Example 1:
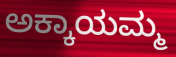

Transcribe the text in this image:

ಅಕ್ಕಾಯಮ್ಮ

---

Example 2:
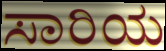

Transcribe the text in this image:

ಸಾರಿಯ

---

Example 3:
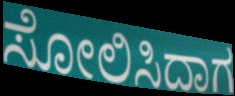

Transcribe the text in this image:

ಸೋಲಿಸಿದಾಗ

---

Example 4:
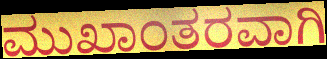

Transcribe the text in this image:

ಮುಖಾಂತರವಾಗಿ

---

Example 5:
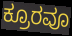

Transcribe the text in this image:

ಕ್ರೂರವೂ